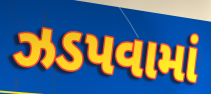
ઝડપવામાં